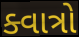
ક્વાત્રો